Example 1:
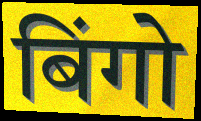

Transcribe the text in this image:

बिंगो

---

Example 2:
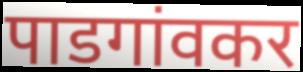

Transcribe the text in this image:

पाडगांवकर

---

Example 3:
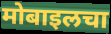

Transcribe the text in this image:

मोबाइलचा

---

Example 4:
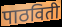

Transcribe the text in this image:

पाठविती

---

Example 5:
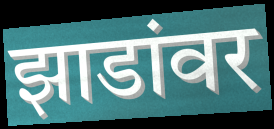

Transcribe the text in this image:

झाडांवर